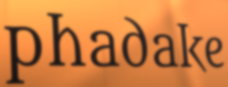
phadake